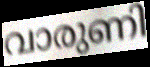
വാരുണി